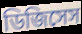
ডিজিসেস